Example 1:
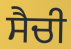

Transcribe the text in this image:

ਸੈਚੀ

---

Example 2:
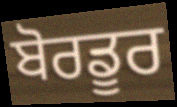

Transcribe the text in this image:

ਬੋਰਡੂਰ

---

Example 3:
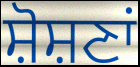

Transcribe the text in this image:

ਸ਼ੋਸ਼ਣਾਂ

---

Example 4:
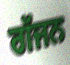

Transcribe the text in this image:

ਗੱਜਨ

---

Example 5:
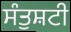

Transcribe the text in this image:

ਸੰਤੁਸ਼ਟੀ